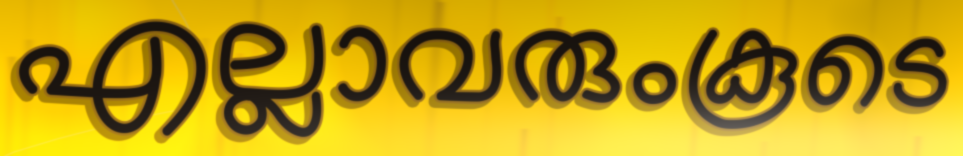
എല്ലാവരുംകൂടെ